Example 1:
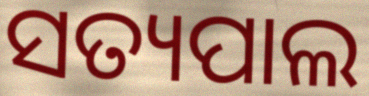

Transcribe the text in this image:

ସତ୍ୟପାଲ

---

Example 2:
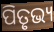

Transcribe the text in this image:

ପିତୃଭ୍ୟ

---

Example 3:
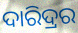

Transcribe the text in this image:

ଦାରିଦ୍ରର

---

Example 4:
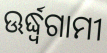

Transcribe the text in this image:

ଊର୍ଦ୍ଧ୍ୱଗାମୀ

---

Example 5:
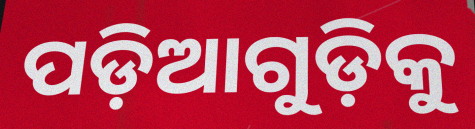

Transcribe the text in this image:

ପଡ଼ିଆଗୁଡ଼ିକୁ